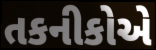
તકનીકોએ